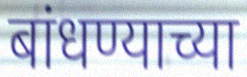
बांधण्याच्या